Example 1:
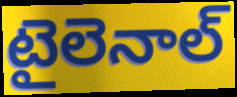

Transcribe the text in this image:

టైలెనాల్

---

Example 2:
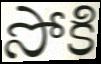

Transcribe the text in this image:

సోకి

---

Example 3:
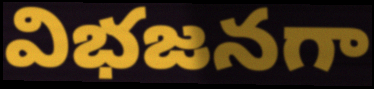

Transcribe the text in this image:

విభజనగా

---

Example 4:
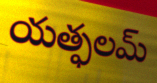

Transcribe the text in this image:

యత్ఫలమ్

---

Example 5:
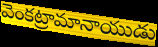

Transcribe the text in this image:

వెంకట్రామానాయుడు